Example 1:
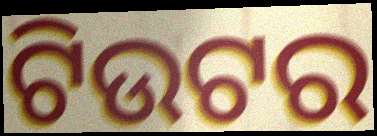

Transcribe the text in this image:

ଟିଉଟର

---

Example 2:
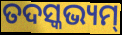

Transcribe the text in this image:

ତଦସ୍କଭ୍ୟମ୍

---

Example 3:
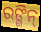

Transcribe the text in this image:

ରଙ୍ଗିନ୍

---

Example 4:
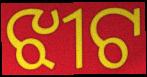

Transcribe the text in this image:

ଝୀଟ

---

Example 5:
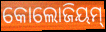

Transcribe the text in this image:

କୋଲୋଜିୟମ୍